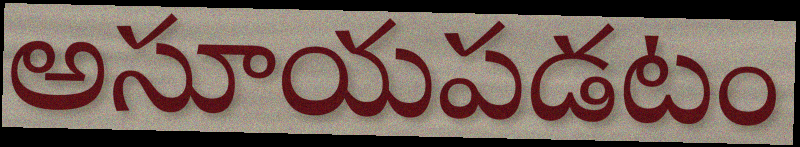
అసూయపడటం